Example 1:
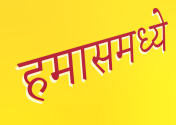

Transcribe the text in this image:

हमासमध्ये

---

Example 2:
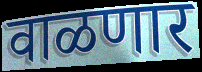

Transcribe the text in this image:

वाळणार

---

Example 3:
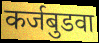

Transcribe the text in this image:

कर्जबुडवा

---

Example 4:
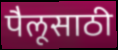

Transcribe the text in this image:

पैलूसाठी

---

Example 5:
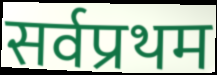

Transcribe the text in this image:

सर्वप्रथम